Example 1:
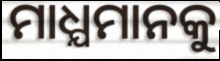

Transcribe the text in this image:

ମାଧ୍ଯମାନକୁ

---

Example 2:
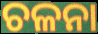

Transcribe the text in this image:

ଚଳନା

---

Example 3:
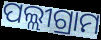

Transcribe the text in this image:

ପଲ୍ଲୀଗ୍ରାମ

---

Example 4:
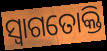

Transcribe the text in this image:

ସ୍ଵାଗତୋକ୍ତି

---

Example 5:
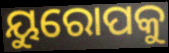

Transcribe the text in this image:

ୟୁରୋପକୁ